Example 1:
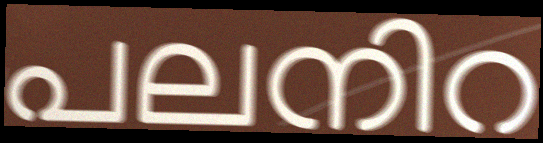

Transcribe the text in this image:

പലനിറ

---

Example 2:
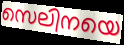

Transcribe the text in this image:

സെലിനയെ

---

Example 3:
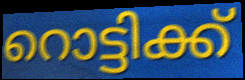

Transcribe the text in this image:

റൊട്ടിക്ക്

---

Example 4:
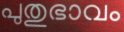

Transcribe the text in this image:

പുതുഭാവം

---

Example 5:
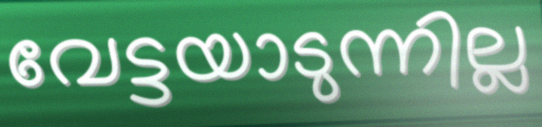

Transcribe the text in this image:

വേട്ടയാടുന്നില്ല